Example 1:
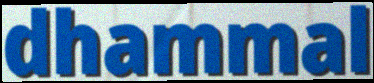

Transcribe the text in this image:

dhammal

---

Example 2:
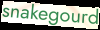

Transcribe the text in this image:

snakegourd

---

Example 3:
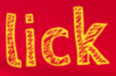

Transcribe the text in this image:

lick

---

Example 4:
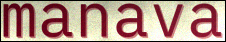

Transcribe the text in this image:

manava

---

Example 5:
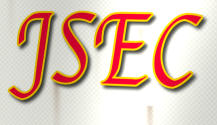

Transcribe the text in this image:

JSEC